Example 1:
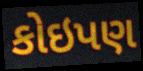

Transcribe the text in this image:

કોઇપણ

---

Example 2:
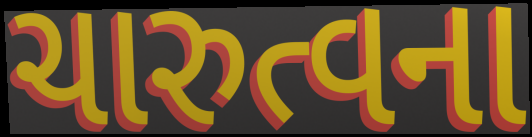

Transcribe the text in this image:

ચારુત્વના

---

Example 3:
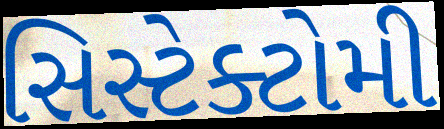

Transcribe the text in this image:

સિસ્ટેક્ટોમી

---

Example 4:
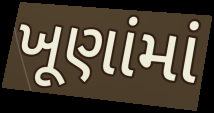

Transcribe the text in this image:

ખૂણાંમાં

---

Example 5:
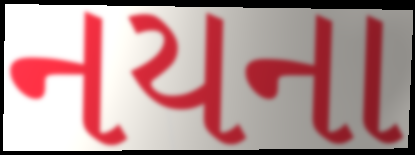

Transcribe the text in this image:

નયના